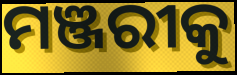
ମଞ୍ଜରୀକୁ